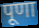
पूणा